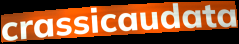
crassicaudata